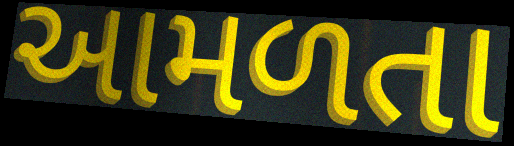
આમળતા